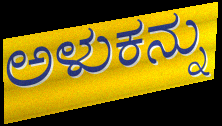
ಅಳುಕನ್ನು